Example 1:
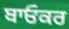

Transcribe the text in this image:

ਬਾਓਕਰ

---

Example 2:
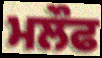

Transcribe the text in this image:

ਮਲੌਫ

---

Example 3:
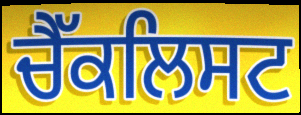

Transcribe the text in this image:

ਚੈੱਕਲਿਸਟ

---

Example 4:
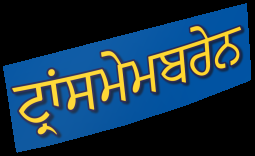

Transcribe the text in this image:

ਟ੍ਰਾਂਸਮੇਮਬਰੇਨ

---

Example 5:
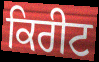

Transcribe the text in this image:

ਕਿਰੀਟ